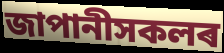
জাপানীসকলৰ